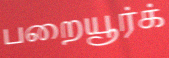
பறையூர்க்